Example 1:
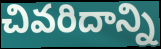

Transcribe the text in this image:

చివరిదాన్ని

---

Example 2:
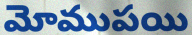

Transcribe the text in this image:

మోముపయి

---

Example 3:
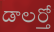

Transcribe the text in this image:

డాలర్తో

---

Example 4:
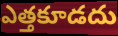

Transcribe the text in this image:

ఎత్తకూడదు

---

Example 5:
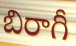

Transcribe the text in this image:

బిరాగీ